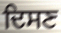
ਦਿਸਣ